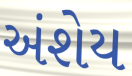
અંશેય